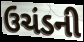
ઉચંડની